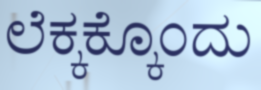
ಲೆಕ್ಕಕ್ಕೊಂದು